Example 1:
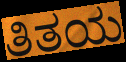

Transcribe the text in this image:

ತಿತಯ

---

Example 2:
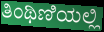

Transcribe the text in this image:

ತಿಂಥಿಣಿಯಲ್ಲಿ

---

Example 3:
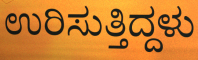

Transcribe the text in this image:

ಉರಿಸುತ್ತಿದ್ದಳು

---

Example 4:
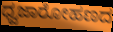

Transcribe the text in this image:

ಧ್ವಜಾರೋಹಣದ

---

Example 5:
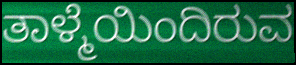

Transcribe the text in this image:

ತಾಳ್ಮೆಯಿಂದಿರುವ